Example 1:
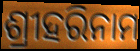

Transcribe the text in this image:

ଶ୍ରୀହରିନାମ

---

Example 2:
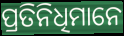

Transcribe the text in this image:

ପ୍ରତିନିଧିମାନେ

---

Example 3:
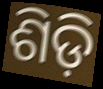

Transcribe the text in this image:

ଶିଡ଼ି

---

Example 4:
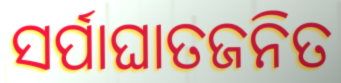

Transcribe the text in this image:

ସର୍ପାଘାତଜନିତ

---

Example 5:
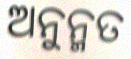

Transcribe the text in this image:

ଅନୁନ୍ମତ